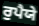
ਰੁਪੈਯੇ